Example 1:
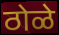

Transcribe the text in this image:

ठोळे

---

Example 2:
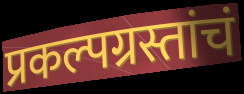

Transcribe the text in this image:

प्रकल्पग्रस्तांचं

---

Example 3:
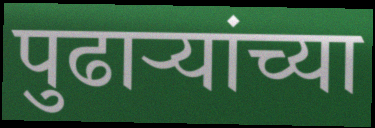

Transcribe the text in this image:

पुढाऱ्यांच्या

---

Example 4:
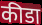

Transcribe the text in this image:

कीडा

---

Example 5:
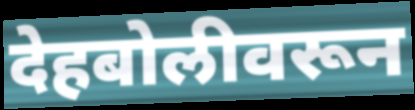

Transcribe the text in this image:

देहबोलीवरून